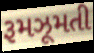
રૂમઝૂમતી